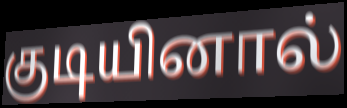
குடியினால்